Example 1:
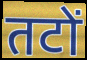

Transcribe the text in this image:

तटों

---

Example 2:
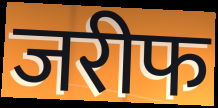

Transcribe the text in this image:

जरीफ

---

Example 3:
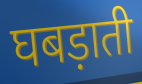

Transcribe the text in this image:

घबड़ाती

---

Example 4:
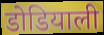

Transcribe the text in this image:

डोडियाली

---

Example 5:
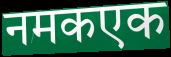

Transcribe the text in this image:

नमकएक